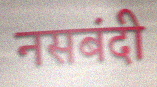
नसबंदी